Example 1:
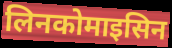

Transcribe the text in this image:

लिनकोमाइसिन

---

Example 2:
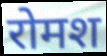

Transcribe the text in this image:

रोमश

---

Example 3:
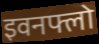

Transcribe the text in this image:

इवनफ्लो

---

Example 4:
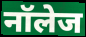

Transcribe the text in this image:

नॉलेज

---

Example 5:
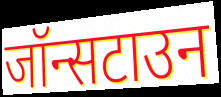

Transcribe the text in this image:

जॉन्सटाउन